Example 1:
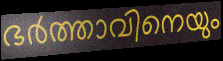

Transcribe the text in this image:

ഭർത്താവിനെയും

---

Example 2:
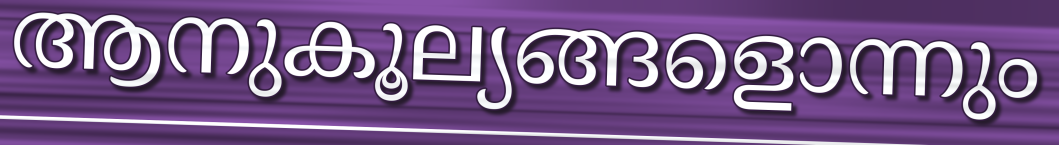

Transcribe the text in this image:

ആനുകൂല്യങ്ങളൊന്നും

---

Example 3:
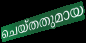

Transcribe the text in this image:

ചെയ്തതുമായ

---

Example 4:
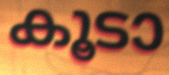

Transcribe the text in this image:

കൂടാ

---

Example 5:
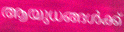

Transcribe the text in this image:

ആയുധങ്ങൾക്ക്